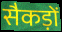
सैकड़ों